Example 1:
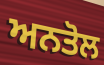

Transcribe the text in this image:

ਅਨਤੋਲ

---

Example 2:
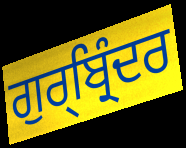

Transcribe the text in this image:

ਗੁਰ੍ਬ੍ਰਿੰਦਰ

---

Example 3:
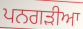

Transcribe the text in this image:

ਪਨਗੜੀਆ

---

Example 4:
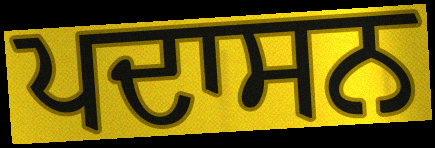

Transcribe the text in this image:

ਪਦਾਸਨ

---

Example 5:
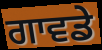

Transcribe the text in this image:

ਗਾਵਡੇ